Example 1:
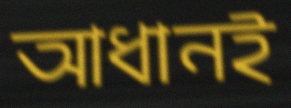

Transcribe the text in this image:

আধানই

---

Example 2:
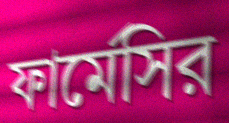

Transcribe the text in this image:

ফার্মেসির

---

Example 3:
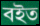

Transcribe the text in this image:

বইত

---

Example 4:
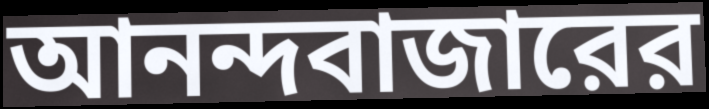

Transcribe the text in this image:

আনন্দবাজারের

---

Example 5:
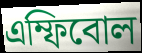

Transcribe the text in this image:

এম্ফিবোল